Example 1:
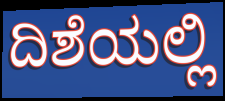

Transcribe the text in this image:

ದಿಶೆಯಲ್ಲಿ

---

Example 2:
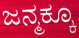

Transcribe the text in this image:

ಜನ್ಮಕ್ಕೂ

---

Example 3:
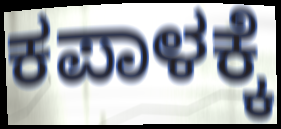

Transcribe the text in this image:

ಕಪಾಳಕ್ಕೆ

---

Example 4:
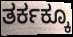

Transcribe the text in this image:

ತರ್ಕಕ್ಕೂ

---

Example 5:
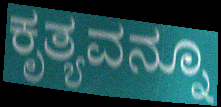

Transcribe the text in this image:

ಕೃತ್ಯವನ್ನೂ